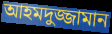
আহমদুজ্জামান